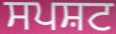
ਸਪਸ਼ਟ